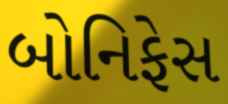
બોનિફેસ